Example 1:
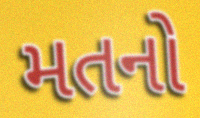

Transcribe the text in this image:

મતનો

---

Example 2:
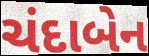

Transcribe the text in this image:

ચંદાબેન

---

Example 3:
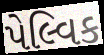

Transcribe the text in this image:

પેલ્વિક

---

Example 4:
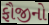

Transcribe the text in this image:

ફૌજીનો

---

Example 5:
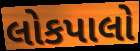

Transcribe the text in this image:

લોકપાલો